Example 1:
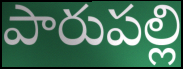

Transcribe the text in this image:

పారుపల్లి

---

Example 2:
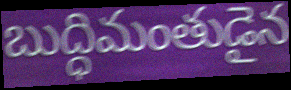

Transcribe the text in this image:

బుద్ధిమంతుడైన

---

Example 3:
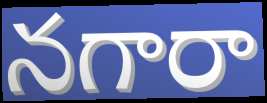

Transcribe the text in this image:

నగారా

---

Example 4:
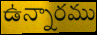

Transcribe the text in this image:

ఉన్నారము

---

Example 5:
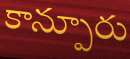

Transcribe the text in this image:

కాన్పూరు